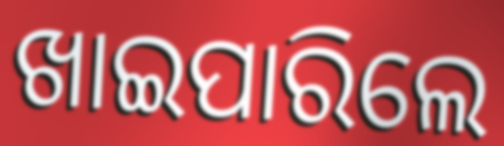
ଖାଇପାରିଲେ